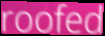
roofed